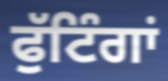
ਫੁੱਟਿੰਗਾਂ